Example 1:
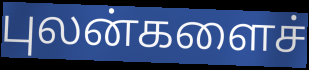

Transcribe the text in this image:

புலன்களைச்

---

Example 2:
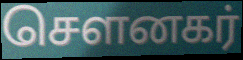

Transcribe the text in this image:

சௌனகர்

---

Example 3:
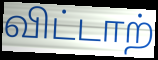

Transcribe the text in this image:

விட்டாற்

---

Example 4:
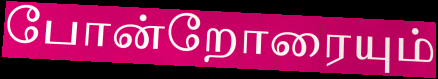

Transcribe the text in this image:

போன்றோரையும்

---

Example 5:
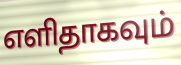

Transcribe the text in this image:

எளிதாகவும்